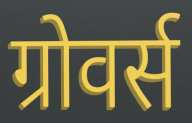
ग्रोवर्स